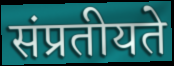
संप्रतीयते